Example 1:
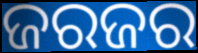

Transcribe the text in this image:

ଜରଜର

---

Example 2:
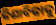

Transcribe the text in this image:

କିଣାବିକାକୁ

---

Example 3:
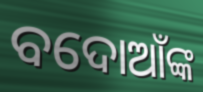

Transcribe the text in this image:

ବଦୋଆଁଙ୍କ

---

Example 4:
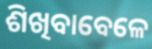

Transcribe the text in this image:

ଶିଖିବାବେଳେ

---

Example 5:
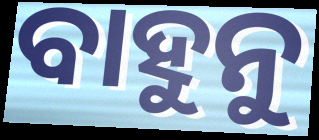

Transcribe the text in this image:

ବାହୁନୁ